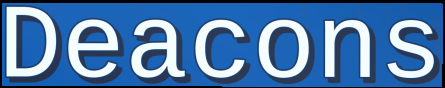
Deacons